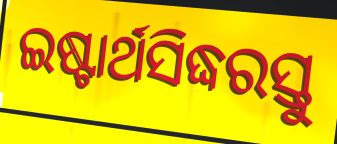
ଇଷ୍ଟାର୍ଥସିଦ୍ଧରସ୍ତୁ